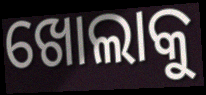
ଖୋଲାକୁ